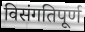
विसंगतिपूर्ण